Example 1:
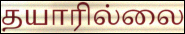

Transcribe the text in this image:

தயாரில்லை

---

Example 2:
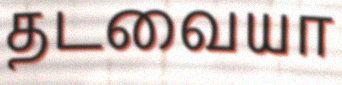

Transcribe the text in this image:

தடவையா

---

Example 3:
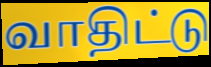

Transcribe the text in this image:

வாதிட்டு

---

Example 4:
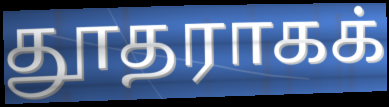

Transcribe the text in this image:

தூதராகக்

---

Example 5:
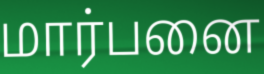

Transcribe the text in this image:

மார்பனை